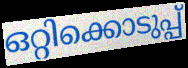
ഒറ്റിക്കൊടുപ്പ്